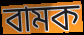
বামক